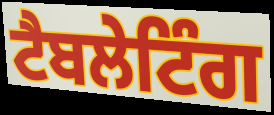
ਟੈਬਲੇਟਿੰਗ